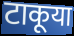
टाकूया